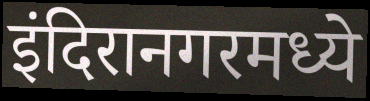
इंदिरानगरमध्ये